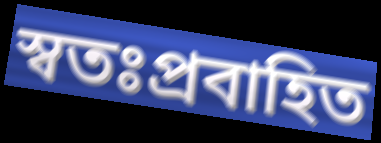
স্বতঃপ্রবাহিত